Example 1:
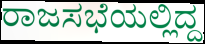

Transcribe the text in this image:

ರಾಜಸಭೆಯಲ್ಲಿದ್ದ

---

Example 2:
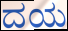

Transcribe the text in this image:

ದಯ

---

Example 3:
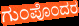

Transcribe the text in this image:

ಗುಂಪೊಂದರ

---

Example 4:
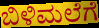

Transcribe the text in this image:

ಬಿಳಿಮಲೆಗೆ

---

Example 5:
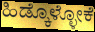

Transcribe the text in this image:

ಹಿಡ್ಕೊಳ್ಳೋಕೆ